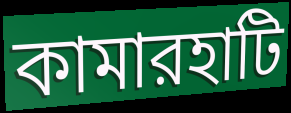
কামারহাটি